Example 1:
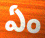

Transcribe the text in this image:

ఏం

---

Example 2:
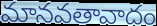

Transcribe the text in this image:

మానవతావాదం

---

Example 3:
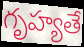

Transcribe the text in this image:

గృహ్యతే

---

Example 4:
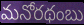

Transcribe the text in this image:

మనోరథంబు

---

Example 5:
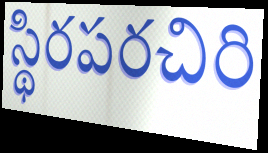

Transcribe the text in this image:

స్థిరపరచిరి